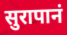
सुरापानं